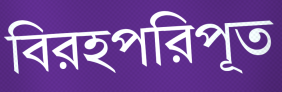
বিরহপরিপূত